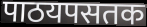
पाठयपसतक